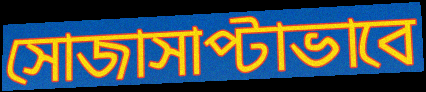
সোজাসাপ্টাভাবে